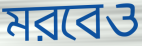
মরবেও